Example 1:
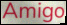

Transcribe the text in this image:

Amigo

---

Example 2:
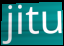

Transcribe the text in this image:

jitu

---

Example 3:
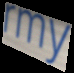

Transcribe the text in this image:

rmy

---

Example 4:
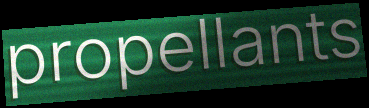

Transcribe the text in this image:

propellants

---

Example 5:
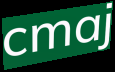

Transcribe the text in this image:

cmaj